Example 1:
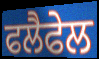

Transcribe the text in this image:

ਫਲੈਫੇਲ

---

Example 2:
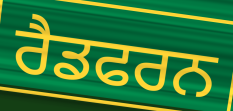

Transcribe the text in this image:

ਰੈਡਫਰਨ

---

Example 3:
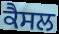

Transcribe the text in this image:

ਕੈਸਲ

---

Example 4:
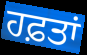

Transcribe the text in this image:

ਹਫ਼ਤਾਂ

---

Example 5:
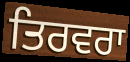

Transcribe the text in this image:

ਤਿਰਵਰਾ